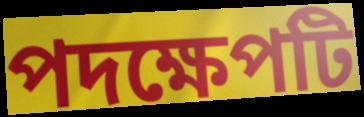
পদক্ষেপটি